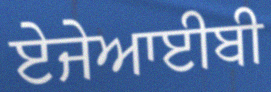
ਏਜੇਆਈਬੀ